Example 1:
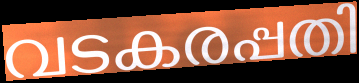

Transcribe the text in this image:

വടകരപ്പതി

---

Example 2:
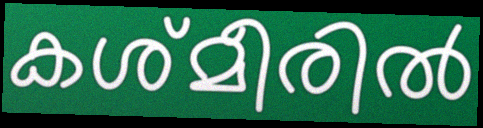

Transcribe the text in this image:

കശ്മീരിൽ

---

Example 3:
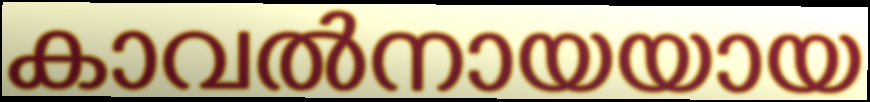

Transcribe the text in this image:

കാവൽനായയായ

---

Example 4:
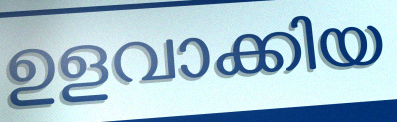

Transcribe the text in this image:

ഉളവാക്കിയ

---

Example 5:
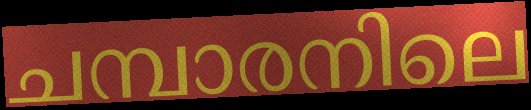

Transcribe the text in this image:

ചമ്പാരനിലെ